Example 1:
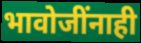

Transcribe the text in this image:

भावोजींनाही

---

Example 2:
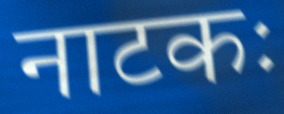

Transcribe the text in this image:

नाटकः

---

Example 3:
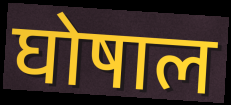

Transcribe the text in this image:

घोषाल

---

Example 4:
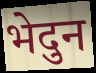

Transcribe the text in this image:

भेदुन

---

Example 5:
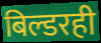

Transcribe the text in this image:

बिल्डरही